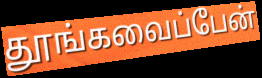
தூங்கவைப்பேன்